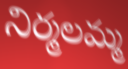
నిర్మలమ్మ